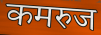
कमरुज